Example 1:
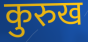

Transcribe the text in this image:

कुरुख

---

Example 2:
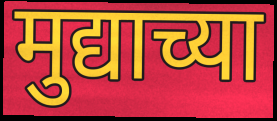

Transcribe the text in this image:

मुद्याच्या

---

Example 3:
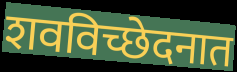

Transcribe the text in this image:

शवविच्छेदनात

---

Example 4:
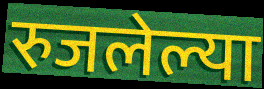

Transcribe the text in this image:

रुजलेल्या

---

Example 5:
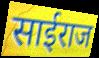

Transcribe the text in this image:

साईराज